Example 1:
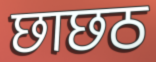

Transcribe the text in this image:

छाछठ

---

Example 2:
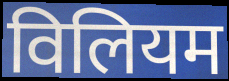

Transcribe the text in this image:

विलियम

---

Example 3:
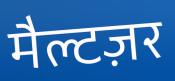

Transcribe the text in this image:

मैल्टज़र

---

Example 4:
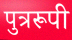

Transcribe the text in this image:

पुत्ररूपी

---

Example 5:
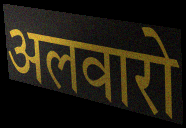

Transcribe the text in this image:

अलवारो